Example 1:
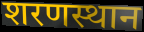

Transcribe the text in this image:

शरणस्थान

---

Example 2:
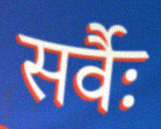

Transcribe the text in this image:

सर्वैः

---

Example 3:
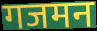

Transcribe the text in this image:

गजमन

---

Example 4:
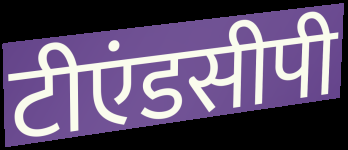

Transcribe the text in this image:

टीएंडसीपी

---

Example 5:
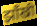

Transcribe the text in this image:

झाँखी